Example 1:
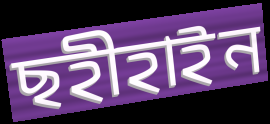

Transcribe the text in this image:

ছহীহাইন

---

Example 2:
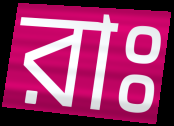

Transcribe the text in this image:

রাঃ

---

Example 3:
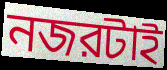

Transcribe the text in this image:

নজরটাই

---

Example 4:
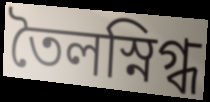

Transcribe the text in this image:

তৈলস্নিগ্ধ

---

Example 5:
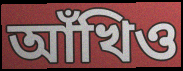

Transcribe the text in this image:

আঁখিও